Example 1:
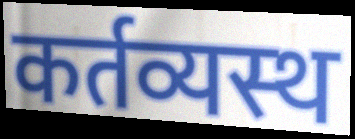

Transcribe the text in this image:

कर्तव्यस्थ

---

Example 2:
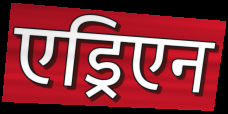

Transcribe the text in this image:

एड्रिएन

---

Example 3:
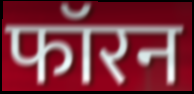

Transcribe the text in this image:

फॉरन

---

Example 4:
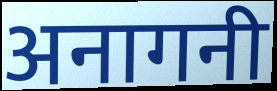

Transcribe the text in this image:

अनागनी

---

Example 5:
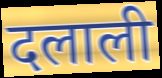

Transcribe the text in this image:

दलाली